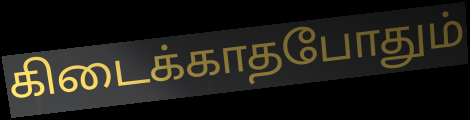
கிடைக்காதபோதும்